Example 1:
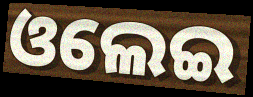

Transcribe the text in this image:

ଓଲେଇ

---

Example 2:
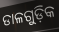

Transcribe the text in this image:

ଡାଳଗୁଡ଼ିକ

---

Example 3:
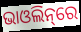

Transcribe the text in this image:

ଭାଓଲିନ୍‌ରେ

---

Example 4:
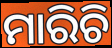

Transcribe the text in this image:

ମାରିଚି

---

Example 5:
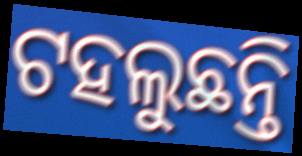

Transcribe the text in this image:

ଟହଲୁଛନ୍ତି